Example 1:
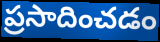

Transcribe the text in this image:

ప్రసాదించడం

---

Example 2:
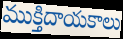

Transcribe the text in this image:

ముక్తిదాయకాలు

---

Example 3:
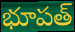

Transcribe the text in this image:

భూపత్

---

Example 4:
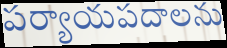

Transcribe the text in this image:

పర్యాయపదాలను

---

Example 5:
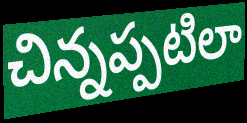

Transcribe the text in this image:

చిన్నప్పటిలా